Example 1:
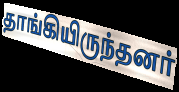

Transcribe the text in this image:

தாங்கியிருந்தனர்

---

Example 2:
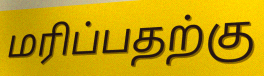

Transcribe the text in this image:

மரிப்பதற்கு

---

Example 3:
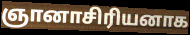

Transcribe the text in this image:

ஞானாசிரியனாக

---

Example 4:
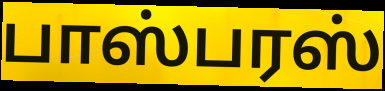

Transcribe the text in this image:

பாஸ்பரஸ்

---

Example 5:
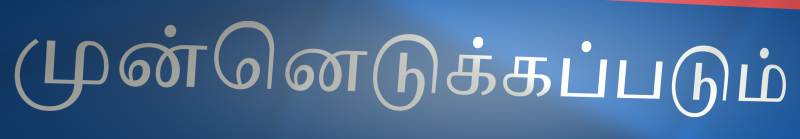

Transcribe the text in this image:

முன்னெடுக்கப்படும்